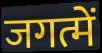
जगत्में